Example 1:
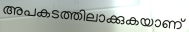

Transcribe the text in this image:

അപകടത്തിലാക്കുകയാണ്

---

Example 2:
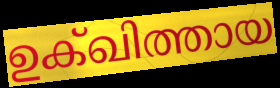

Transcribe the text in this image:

ഉക്ഖിത്തായ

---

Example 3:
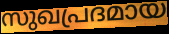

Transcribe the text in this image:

സുഖപ്രദമായ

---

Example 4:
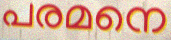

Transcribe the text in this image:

പരമനെ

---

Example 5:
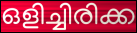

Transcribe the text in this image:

ഒളിച്ചിരിക്ക